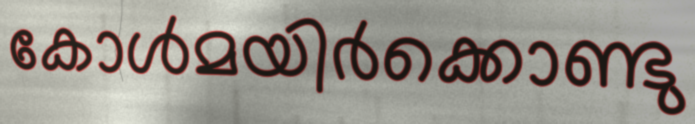
കോൾമയിർക്കൊണ്ടു